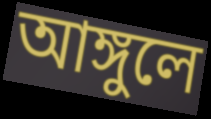
আঙ্গুলে